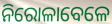
ନିରୋଳାବେଳେ